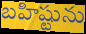
బహిష్టును